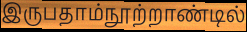
இருபதாம்நூற்றாண்டில்